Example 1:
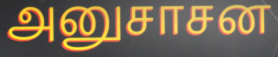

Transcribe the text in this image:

அனுசாசன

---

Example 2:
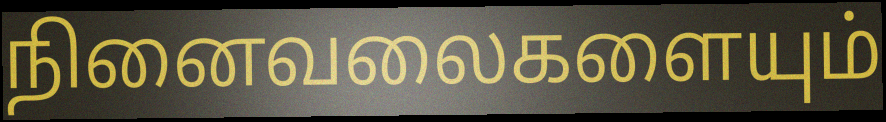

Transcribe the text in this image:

நினைவலைகளையும்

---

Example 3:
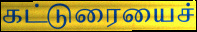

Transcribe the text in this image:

கட்டுரையைச்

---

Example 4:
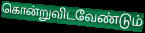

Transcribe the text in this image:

கொன்றுவிடவேண்டும்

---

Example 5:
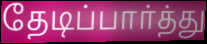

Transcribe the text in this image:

தேடிப்பார்த்து